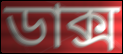
ডাক্স